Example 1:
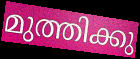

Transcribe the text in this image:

മുത്തിക്കു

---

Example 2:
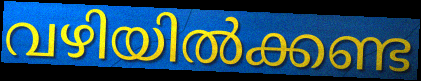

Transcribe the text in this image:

വഴിയിൽക്കണ്ട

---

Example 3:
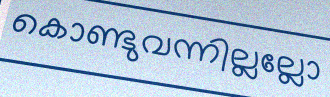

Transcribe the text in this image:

കൊണ്ടുവന്നില്ലല്ലോ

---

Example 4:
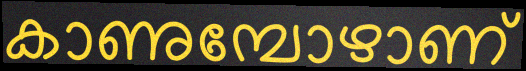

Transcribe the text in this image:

കാണുമ്പോഴാണ്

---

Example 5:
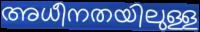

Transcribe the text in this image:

അധീനതയിലുള്ള